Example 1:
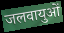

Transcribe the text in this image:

जलवायुओं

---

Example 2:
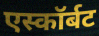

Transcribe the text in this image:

एस्कॉर्बट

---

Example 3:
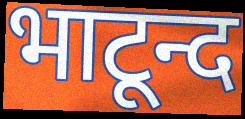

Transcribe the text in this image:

भाटून्द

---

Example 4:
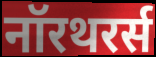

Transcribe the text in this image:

नॉरथरर्स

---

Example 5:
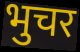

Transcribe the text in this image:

भुचर